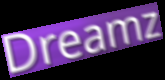
Dreamz